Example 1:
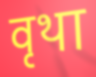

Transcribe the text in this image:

वृथा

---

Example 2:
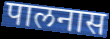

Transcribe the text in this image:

पालनास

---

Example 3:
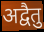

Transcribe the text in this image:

अद्वैतु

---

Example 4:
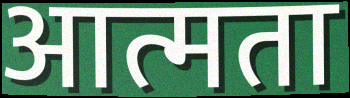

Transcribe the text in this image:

आत्मता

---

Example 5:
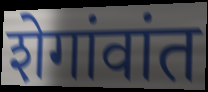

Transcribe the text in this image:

शेगांवांत